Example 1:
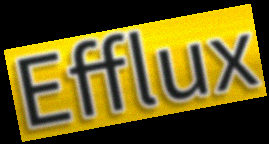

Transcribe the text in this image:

Efflux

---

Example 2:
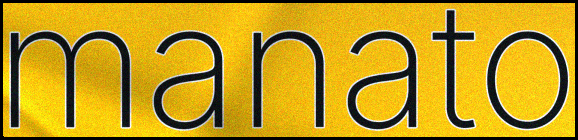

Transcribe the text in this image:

manato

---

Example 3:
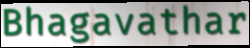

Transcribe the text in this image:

Bhagavathar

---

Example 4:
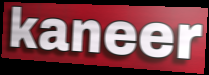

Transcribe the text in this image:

kaneer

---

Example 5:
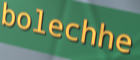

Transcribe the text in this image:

bolechhe